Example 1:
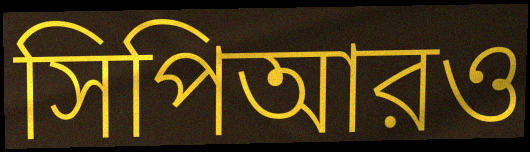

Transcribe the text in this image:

সিপিআরও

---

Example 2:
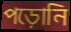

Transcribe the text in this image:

পড়োনি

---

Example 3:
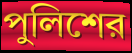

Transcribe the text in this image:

পুলিশের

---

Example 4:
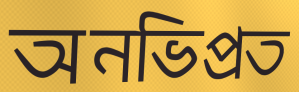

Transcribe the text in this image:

অনভিপ্রত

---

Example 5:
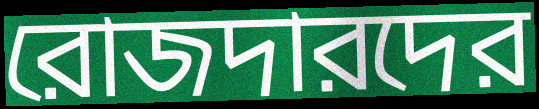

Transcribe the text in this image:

রোজদারদের